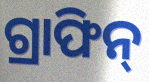
ଗ୍ରାଫିନ୍